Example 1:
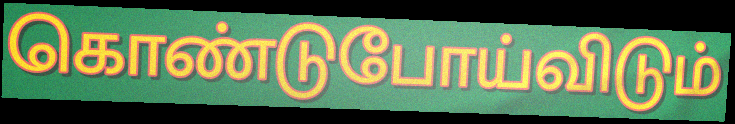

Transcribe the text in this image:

கொண்டுபோய்விடும்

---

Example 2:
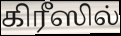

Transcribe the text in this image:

கிரீஸில்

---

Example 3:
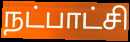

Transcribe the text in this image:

நட்பாட்சி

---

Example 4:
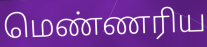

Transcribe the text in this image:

மெண்ணரிய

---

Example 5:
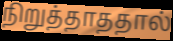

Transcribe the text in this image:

நிறுத்தாததால்